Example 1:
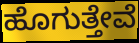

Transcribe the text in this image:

ಹೊಗುತ್ತೇವೆ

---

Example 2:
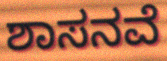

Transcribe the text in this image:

ಶಾಸನವೆ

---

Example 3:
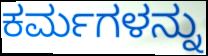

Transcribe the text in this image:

ಕರ್ಮಗಳನ್ನು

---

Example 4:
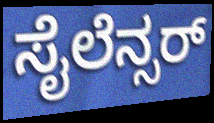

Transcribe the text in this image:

ಸೈಲೆನ್ಸರ್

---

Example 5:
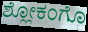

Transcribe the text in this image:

ಶ್ಲೋಕಂಗೊ